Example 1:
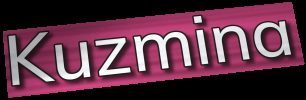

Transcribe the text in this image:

Kuzmina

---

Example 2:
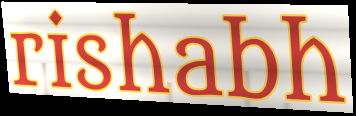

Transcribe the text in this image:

rishabh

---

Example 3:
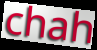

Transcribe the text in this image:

chah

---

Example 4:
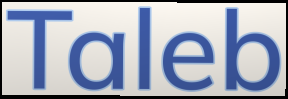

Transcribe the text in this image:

Taleb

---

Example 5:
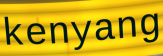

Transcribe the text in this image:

kenyang